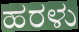
ಹರಳು